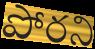
పోరని